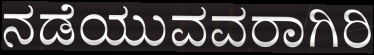
ನಡೆಯುವವರಾಗಿರಿ